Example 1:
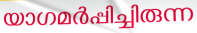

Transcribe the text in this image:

യാഗമർപ്പിച്ചിരുന്ന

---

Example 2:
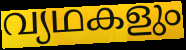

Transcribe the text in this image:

വ്യഥകളും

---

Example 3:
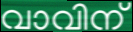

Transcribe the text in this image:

വാവിന്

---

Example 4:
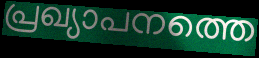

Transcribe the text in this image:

പ്രഖ്യാപനത്തെ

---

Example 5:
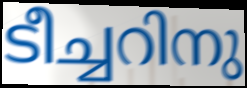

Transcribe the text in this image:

ടീച്ചറിനു